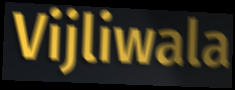
Vijliwala